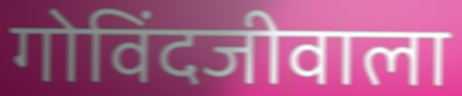
गोविंदजीवाला